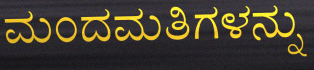
ಮಂದಮತಿಗಳನ್ನು